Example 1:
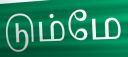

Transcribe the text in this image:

டும்மே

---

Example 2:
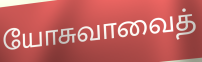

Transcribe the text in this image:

யோசுவாவைத்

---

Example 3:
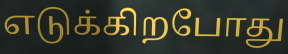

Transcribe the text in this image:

எடுக்கிறபோது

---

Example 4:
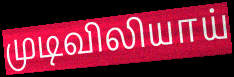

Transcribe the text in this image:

முடிவிலியாய்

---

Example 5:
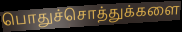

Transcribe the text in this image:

பொதுச்சொத்துக்களை